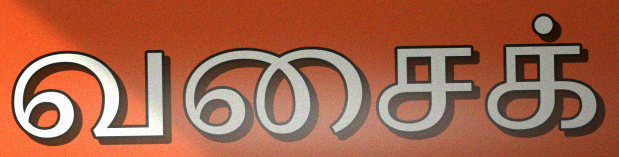
வசைக்